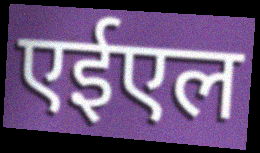
एईएल